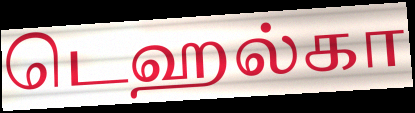
டெஹல்கா